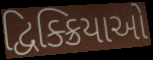
દ્વિક્ક્રિયાઓ